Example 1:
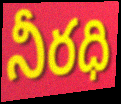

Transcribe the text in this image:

నీరధి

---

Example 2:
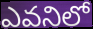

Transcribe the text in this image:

ఎవనిలో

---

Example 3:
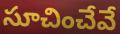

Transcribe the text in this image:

సూచించేవే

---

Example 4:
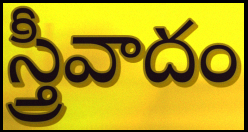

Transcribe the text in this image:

స్త్రీవాదం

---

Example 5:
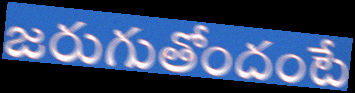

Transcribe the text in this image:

జరుగుతోందంటే